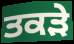
ਤਕੜੇ